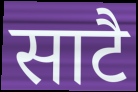
साटै